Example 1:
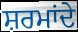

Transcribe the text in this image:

ਸ਼ਰਮਾਂਦੇ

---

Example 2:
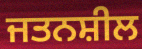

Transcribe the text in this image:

ਜਤਨਸ਼ੀਲ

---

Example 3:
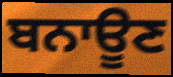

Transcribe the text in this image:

ਬਨਾਊਣ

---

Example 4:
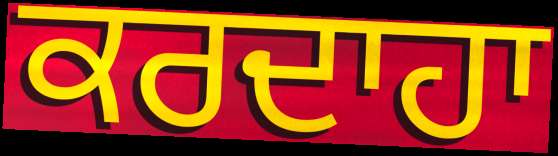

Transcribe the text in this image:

ਕਰਦਾਹਾ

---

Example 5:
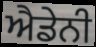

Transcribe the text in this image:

ਐਡੇਨੀ